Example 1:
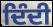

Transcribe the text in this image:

ਦਿੰਦੀ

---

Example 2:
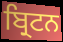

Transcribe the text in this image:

ਬ੍ਰਿਟਨ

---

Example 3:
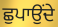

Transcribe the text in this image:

ਛੁਪਾਉਂਦੇ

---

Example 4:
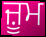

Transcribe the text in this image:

ਜ਼ੂਮ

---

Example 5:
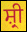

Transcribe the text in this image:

ਸ਼੍ਰੀ